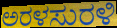
ಅರಳಸುರಳಿ